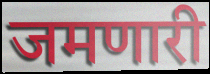
जमणारी